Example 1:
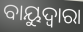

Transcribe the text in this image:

ବାୟୁଦ୍ୱାରା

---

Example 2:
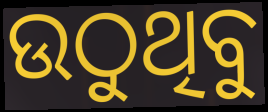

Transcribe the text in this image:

ଉଠୁଥିବୁ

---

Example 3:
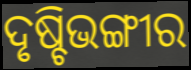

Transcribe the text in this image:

ଦୃଷ୍ଚିଭଙ୍ଗୀର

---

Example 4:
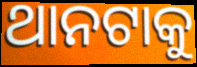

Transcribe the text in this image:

ଥାନଟାକୁ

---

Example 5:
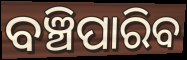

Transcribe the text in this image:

ବଞ୍ଚିପାରିବ